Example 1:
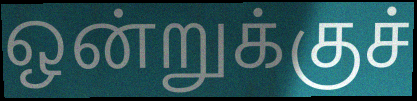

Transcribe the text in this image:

ஒன்றுக்குச்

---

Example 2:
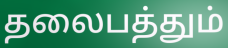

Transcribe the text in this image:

தலைபத்தும்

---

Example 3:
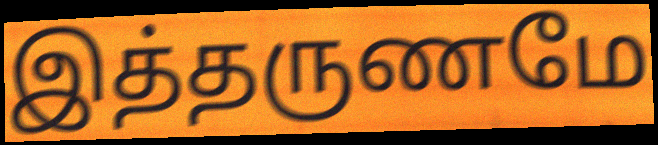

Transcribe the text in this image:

இத்தருணமே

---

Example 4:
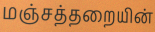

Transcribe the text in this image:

மஞ்சத்தறையின்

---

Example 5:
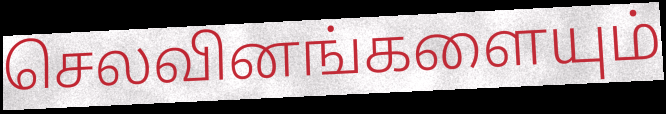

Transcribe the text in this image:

செலவினங்களையும்